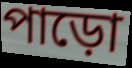
পাড়ো